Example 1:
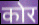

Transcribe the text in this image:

कोर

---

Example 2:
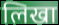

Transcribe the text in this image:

लिखा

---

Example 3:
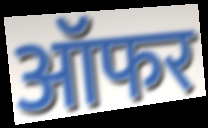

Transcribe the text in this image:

ऑफर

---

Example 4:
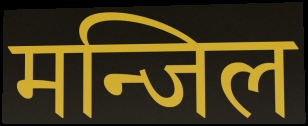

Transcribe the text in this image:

मन्जिल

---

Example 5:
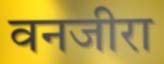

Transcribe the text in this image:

वनजीरा